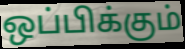
ஒப்பிக்கும்